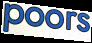
poors